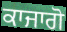
ਕਾਜਾਗੋ